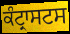
ਕੰਟ੍ਰਾਸਟਸ